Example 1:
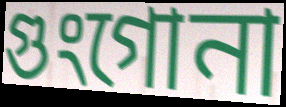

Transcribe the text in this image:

গুংগোনা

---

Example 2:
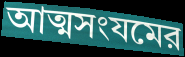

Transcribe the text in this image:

আত্মসংযমের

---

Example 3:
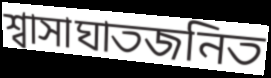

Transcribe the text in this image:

শ্বাসাঘাতজনিত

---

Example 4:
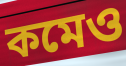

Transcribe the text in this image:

কমেও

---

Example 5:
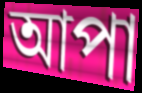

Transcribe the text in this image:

আপা